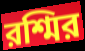
রশ্মির